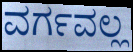
ವರ್ಗವಲ್ಲ